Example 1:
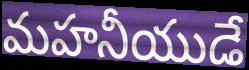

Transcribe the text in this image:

మహనీయుడే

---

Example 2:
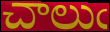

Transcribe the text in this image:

చాలుఁ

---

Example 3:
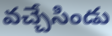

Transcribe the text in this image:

వచ్చేసిండు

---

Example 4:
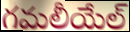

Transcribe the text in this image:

గమలీయేల్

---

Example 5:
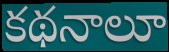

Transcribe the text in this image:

కథనాలూ